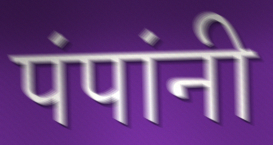
पंपांनी